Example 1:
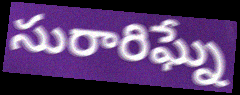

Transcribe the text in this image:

సురారిఘ్నే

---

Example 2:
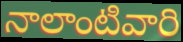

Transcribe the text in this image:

నాలాంటివారి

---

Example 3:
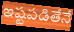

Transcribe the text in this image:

ఇష్టపడితేనే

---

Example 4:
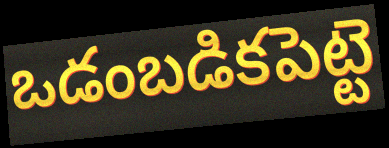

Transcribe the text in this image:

ఒడంబడికపెట్టె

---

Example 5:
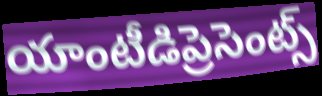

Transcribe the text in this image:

యాంటీడిప్రెసెంట్స్